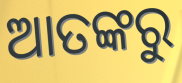
ଆତଙ୍କରୁ